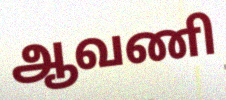
ஆவணி